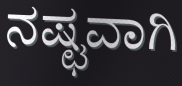
ನಷ್ಟವಾಗಿ